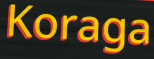
Koraga